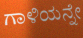
ಗಾಳಿಯನ್ನೇ